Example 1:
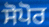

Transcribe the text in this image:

ਸੋਪੋਰ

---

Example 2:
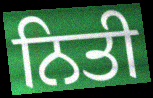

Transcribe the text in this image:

ਨਿਤੀ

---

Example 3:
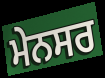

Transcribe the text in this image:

ਮੇਨਸਰ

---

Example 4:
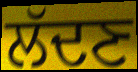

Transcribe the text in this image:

ਲੱਦਣ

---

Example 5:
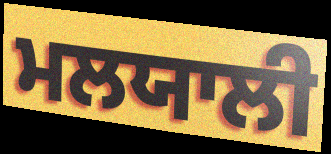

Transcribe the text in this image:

ਮਲਯਾਲੀ